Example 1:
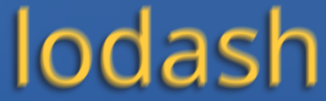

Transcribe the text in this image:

lodash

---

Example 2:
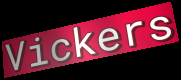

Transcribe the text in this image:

Vickers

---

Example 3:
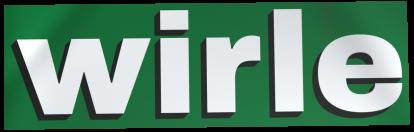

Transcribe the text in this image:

wirle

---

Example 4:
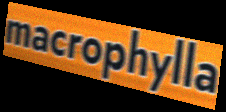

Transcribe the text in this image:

macrophylla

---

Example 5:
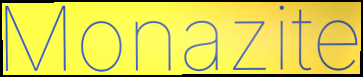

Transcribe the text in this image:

Monazite